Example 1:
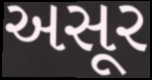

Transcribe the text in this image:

અસૂર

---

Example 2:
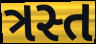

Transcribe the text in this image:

ત્રસ્ત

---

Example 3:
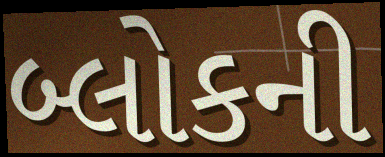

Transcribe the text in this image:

બ્લોકની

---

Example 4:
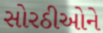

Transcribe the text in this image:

સોરઠીઓને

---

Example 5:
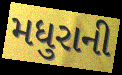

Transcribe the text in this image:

મધુરાની